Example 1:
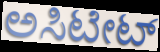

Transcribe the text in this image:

ಅಸಿಟೇಟ್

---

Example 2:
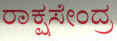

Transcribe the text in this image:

ರಾಕ್ಷಸೇಂದ್ರ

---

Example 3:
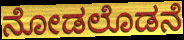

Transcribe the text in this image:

ನೋಡಲೊಡನೆ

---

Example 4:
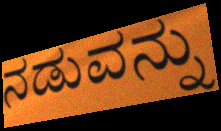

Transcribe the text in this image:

ನಡುವನ್ನು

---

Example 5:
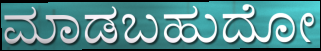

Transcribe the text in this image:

ಮಾಡಬಹುದೋ